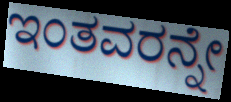
ಇಂತವರನ್ನೇ